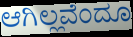
ಆಗಿಲ್ಲವೆಂದೂ